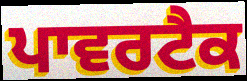
ਪਾਵਰਟੈਕ